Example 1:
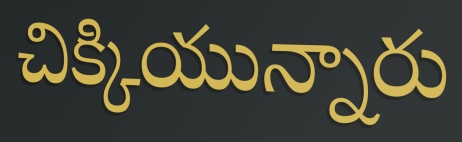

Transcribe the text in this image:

చిక్కియున్నారు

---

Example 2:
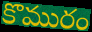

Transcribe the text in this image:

కొమురం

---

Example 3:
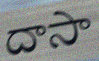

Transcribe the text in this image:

దాసా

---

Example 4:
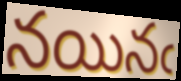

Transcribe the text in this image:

నయినఁ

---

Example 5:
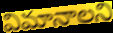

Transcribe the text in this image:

విమానాలని